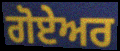
ਗੋਏਅਰ